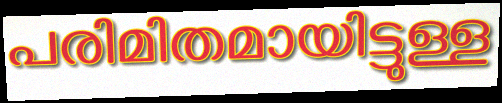
പരിമിതമായിട്ടുള്ള